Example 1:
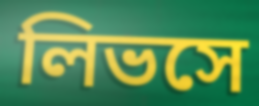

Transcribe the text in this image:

লিভসে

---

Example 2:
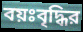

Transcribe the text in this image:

বয়ঃবৃদ্ধির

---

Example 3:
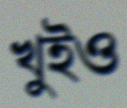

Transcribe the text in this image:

খুইও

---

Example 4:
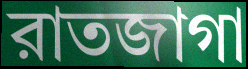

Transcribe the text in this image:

রাতজাগা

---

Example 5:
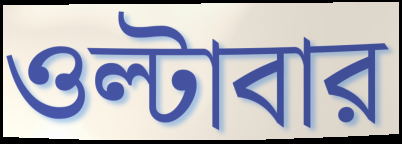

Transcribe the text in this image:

ওল্টাবার